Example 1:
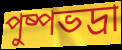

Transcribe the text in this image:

পুষ্পভদ্ৰা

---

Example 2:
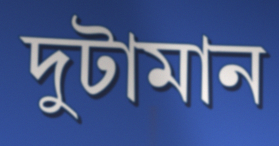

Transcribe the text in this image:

দুটামান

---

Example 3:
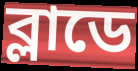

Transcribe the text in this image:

ব্লাডে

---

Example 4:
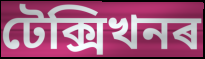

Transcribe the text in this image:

টেক্সিখনৰ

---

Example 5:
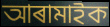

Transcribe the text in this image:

আৰামাইক